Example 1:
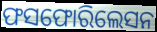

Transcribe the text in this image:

ଫସଫୋରିଲେସନ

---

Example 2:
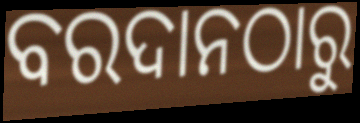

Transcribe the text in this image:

ବରଦାନଠାରୁ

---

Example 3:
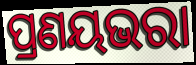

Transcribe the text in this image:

ପ୍ରଣୟଭରା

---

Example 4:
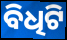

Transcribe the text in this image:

ବିଧିଟି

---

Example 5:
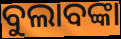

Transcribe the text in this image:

ବୁଲାବଙ୍କା